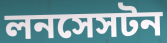
লনসেসটন